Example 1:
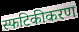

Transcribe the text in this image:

स्फटिकीकरण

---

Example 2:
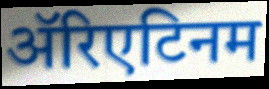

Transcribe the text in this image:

ॲरिएटिनम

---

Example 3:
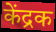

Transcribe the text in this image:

केंद्रक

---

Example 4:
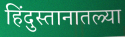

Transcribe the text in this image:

हिंदुस्तानातल्या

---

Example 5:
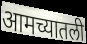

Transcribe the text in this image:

आमच्यातली